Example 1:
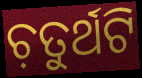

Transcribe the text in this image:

ଚ଼ତୁର୍ଥଟି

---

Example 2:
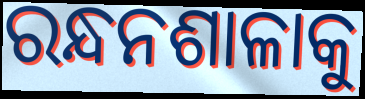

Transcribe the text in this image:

ରନ୍ଧନଶାଳାକୁ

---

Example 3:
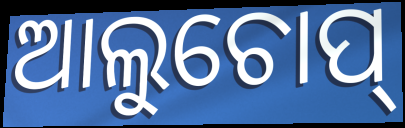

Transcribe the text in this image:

ଆଲୁଚୋପ୍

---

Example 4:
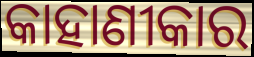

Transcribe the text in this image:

କାହାଣୀକାର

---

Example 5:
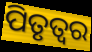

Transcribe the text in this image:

ପିତୃତ୍ୱର